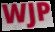
WJP